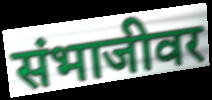
संभाजीवर